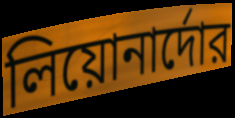
লিয়োনার্দোর